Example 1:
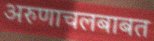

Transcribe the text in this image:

अरुणाचलबाबत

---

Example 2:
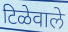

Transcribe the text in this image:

टिळेवाले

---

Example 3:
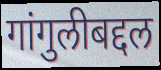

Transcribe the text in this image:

गांगुलीबद्दल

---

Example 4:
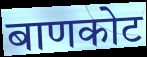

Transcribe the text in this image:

बाणकोट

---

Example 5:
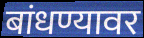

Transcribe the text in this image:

बांधण्यावर